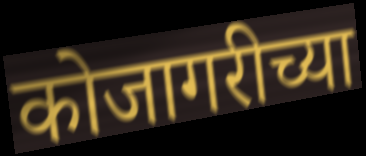
कोजागरीच्या